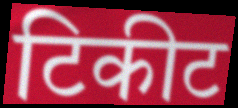
टिकीट